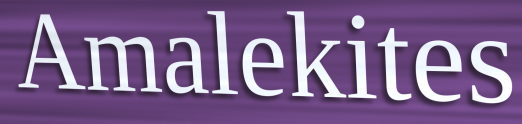
Amalekites